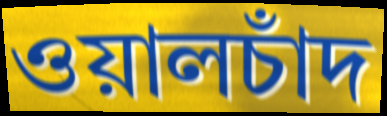
ওয়ালচাঁদ